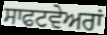
ਸਾਫਟਵੇਅਰਾਂ